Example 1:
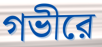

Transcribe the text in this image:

গভীরে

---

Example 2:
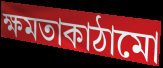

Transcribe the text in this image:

ক্ষমতাকাঠামো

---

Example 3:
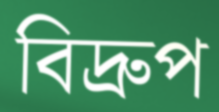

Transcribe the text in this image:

বিদ্রুপ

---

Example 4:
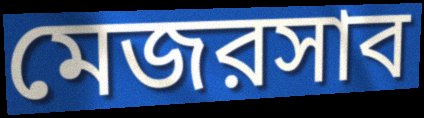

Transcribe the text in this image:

মেজরসাব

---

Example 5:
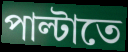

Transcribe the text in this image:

পাল্টাতে